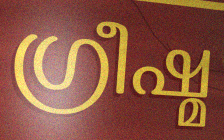
ഗ്രീഷ്മ